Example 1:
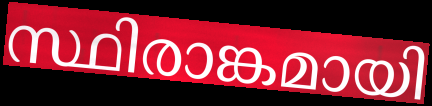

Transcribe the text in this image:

സ്ഥിരാങ്കമായി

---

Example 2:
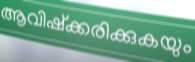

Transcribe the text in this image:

ആവിഷ്ക്കരിക്കുകയും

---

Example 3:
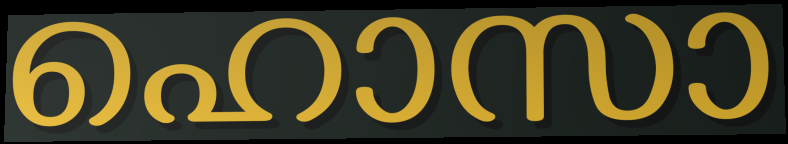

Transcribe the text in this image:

ഹൊസാ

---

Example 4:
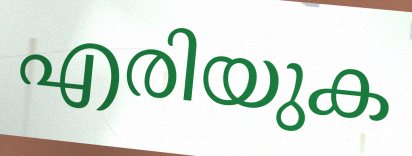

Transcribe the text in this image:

എരിയുക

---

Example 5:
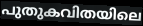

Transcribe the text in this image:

പുതുകവിതയിലെ